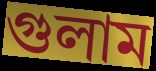
গুলাম